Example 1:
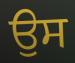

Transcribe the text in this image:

ਉਸ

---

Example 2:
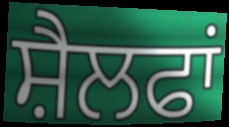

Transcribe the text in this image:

ਸ਼ੈਲਫਾਂ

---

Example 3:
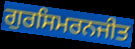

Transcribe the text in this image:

ਗੁਰਸਿਮਰਨਜੀਤ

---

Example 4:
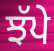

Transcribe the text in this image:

ਝੱਪੇ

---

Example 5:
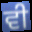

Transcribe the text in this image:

ਵੀ